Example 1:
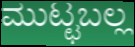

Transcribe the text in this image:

ಮುಟ್ಟಬಲ್ಲ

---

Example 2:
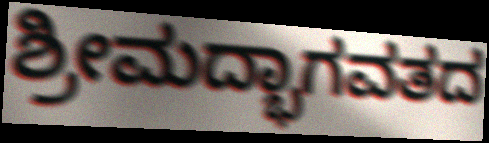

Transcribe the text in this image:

ಶ್ರೀಮದ್ಭಾಗವತದ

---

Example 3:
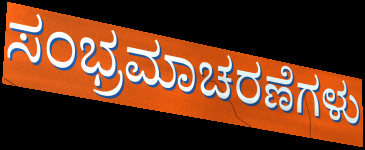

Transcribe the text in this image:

ಸಂಭ್ರಮಾಚರಣೆಗಳು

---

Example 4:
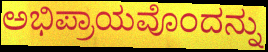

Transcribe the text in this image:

ಅಭಿಪ್ರಾಯವೊಂದನ್ನು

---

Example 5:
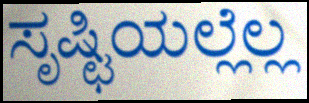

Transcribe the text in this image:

ಸೃಷ್ಟಿಯಲ್ಲೆಲ್ಲ